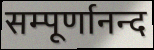
सम्पूर्णानन्द